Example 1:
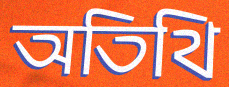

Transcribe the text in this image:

অতিথি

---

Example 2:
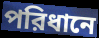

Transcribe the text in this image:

পরিধানে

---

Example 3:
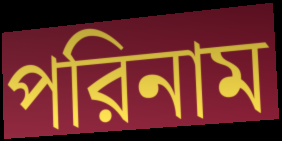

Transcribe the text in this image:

পরিনাম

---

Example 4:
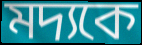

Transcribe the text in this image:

মদ্যকে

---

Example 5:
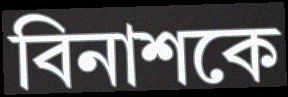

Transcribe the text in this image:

বিনাশকে